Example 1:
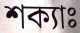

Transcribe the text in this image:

শক্যাঃ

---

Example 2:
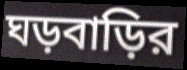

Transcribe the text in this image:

ঘড়বাড়ির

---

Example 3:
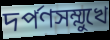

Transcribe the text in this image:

দর্পণসম্মুখে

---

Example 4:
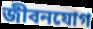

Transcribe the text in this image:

জীবনযোগ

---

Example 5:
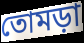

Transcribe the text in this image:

তোমড়া